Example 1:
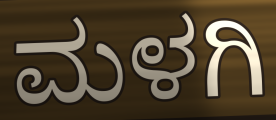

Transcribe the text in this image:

ಮಳಗಿ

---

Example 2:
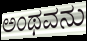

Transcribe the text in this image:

ಅಂಥವನು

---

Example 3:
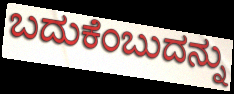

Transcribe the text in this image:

ಬದುಕೆಂಬುದನ್ನು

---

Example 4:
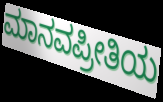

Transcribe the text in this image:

ಮಾನವಪ್ರೀತಿಯ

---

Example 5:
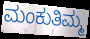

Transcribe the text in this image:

ಮಂಕುತಿಮ್ಮ